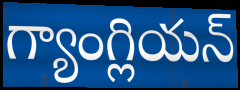
గ్యాంగ్లియన్